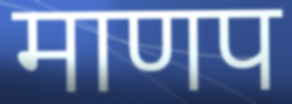
माणप